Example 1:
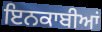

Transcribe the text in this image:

ਇਨਕਾਬੀਆਂ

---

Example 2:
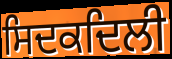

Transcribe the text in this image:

ਸਿਦਕਦਿਲੀ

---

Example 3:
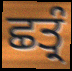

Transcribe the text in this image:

ਛਤ੍ਰੰ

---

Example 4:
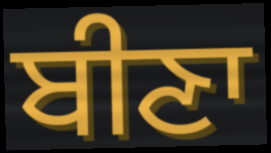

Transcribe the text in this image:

ਬੀਣਾ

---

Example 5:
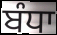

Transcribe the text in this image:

ਬੰਧਾ